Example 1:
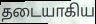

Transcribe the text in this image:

தடையாகிய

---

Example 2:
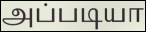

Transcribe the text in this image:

அப்படியா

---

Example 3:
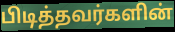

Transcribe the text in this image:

பிடித்தவர்களின்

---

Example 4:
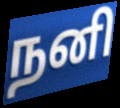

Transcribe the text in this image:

நனி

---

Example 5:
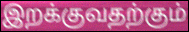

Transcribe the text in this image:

இறக்குவதற்கும்